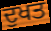
ਦੁਖਤ